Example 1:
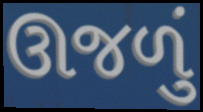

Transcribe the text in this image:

ઊજળું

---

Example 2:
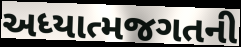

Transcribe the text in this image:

અધ્યાત્મજગતની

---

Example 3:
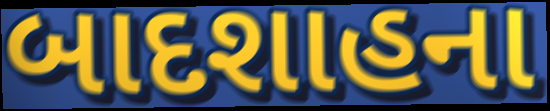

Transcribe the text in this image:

બાદશાહના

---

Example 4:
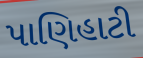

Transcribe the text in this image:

પાણિહાટી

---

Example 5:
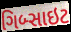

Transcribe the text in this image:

ગિબ્સાઇટ